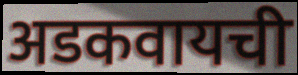
अडकवायची